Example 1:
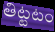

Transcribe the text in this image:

తిట్టటం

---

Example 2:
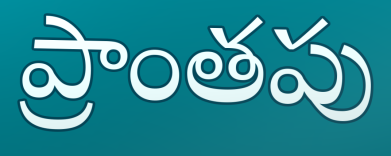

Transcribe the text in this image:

ప్రాంతపు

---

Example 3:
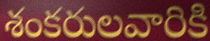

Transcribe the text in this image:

శంకరులవారికి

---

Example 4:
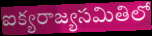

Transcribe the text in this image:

ఐక్యరాజ్యసమితిలో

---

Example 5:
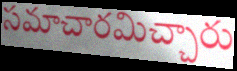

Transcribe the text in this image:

సమాచారమిచ్చారు